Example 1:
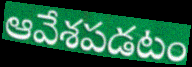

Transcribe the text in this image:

ఆవేశపడటం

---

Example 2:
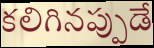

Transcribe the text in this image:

కలిగినప్పుడే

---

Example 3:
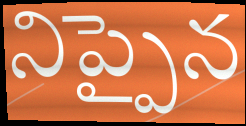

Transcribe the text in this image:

నిప్పైన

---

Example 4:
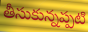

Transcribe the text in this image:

తీసుకున్నప్పటి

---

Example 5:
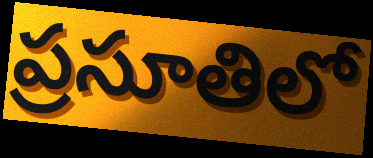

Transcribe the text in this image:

ప్రసూతిలో